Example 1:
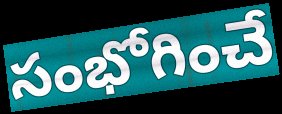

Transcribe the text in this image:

సంభోగించే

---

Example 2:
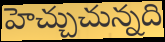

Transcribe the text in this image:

హెచ్చుచున్నది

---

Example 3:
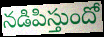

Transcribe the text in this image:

నడిపిస్తుందో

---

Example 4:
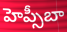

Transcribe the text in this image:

హెప్సీబా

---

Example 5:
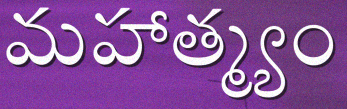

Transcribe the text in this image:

మహాత్మ్యం